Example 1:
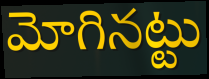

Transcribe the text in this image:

మోగినట్టు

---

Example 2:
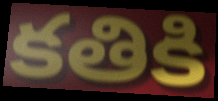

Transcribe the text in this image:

కతికి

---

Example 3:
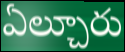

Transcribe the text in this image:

ఏల్చూరు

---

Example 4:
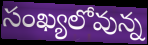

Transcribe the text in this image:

సంఖ్యలోవున్న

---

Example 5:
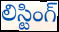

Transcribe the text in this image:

లిస్టింగ్